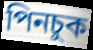
পিনচুক